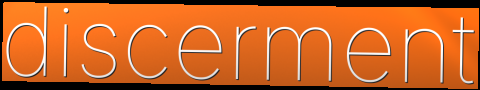
discerment